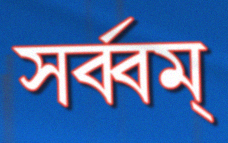
সৰ্ব্বম্